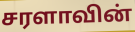
சரளாவின்